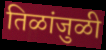
तिळांजुळी